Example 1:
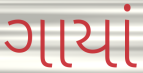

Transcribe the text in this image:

ગાયાં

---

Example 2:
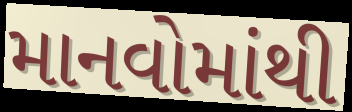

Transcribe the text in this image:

માનવોમાંથી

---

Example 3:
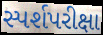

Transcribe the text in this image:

સ્પર્શપરીક્ષા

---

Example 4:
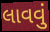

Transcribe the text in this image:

લાવવું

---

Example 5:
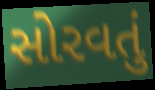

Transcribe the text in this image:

સોરવતું